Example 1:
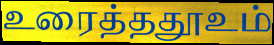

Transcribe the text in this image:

உரைத்ததூஉம்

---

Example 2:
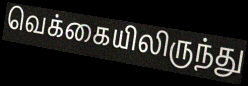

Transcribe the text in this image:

வெக்கையிலிருந்து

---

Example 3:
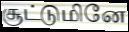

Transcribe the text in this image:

சூட்டுமினே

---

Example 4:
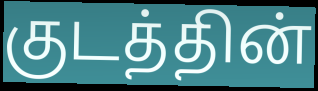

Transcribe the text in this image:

குடத்தின்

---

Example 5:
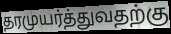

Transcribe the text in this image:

தரமுயர்த்துவதற்கு